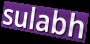
sulabh